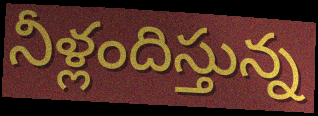
నీళ్లందిస్తున్న